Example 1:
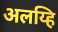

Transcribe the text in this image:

अलय्हि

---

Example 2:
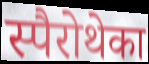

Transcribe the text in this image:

स्पैरोथेका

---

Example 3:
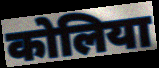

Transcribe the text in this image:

कोलिया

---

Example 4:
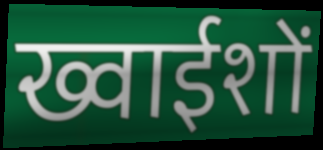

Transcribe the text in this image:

ख्वाईशों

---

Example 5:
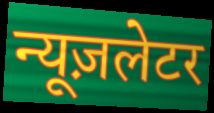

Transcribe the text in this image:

न्यूज़लेटर